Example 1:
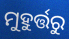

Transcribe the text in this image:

ମୁହୁର୍ତ୍ତରୁ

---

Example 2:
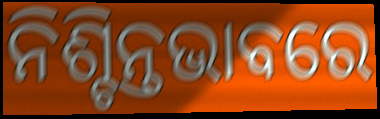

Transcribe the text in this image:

ନିଶ୍ଚିନ୍ତଭାବରେ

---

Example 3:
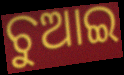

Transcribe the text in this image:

ଚୁଆଇ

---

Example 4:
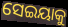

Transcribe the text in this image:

ସେଇୟାକୁ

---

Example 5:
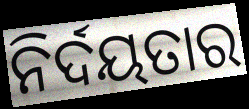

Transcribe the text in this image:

ନିର୍ଦୟତାର